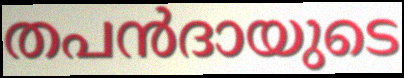
തപൻദായുടെ